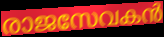
രാജസേവകൻ